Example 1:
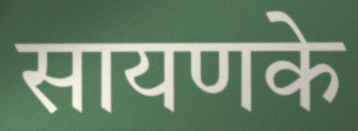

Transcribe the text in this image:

सायणके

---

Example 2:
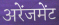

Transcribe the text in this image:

अरेंजमेंट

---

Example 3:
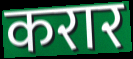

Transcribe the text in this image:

करार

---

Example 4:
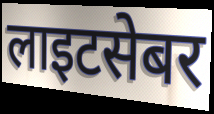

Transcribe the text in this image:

लाइटसेबर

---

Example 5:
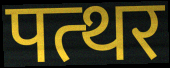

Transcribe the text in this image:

पत्‍थर